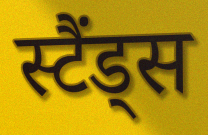
स्टैंड्स